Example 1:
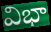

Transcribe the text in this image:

విభా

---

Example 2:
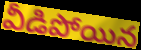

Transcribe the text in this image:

వీడిపోయిన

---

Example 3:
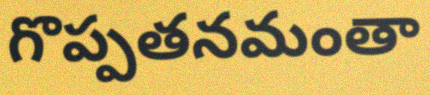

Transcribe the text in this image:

గొప్పతనమంతా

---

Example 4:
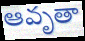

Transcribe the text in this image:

ఆవృతా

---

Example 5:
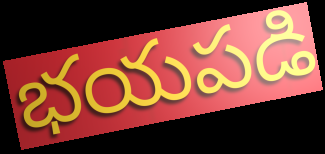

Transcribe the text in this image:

భయపడి